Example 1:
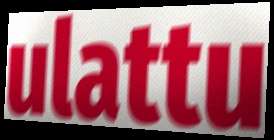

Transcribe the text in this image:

ulattu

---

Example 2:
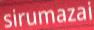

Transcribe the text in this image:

sirumazai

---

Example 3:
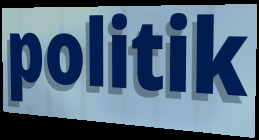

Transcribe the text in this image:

politik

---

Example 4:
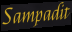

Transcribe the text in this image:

Sampadit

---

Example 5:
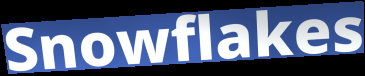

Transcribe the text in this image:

Snowflakes